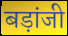
बड़ांजी